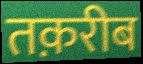
तक़रीब